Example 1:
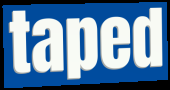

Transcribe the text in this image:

taped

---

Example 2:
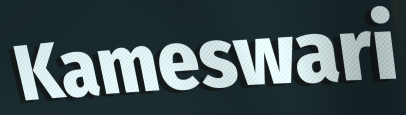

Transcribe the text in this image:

Kameswari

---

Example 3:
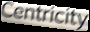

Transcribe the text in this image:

Centricity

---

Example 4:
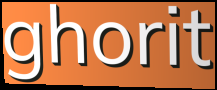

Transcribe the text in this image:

ghorit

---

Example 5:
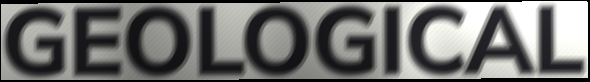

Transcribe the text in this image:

GEOLOGICAL